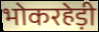
भोकरहेड़ी